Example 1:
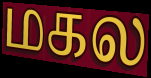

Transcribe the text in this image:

மகல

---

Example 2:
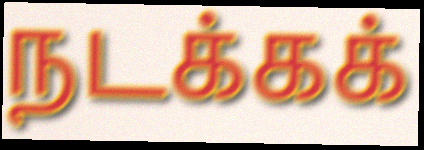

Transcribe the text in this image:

நடக்கக்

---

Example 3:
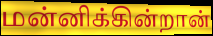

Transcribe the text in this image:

மன்னிக்கின்றான்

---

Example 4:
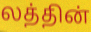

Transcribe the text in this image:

லத்தின்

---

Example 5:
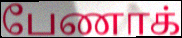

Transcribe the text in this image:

பேணாக்